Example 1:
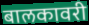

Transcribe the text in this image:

बालकावरी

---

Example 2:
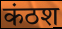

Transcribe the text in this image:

कंठश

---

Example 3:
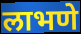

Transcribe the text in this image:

लाभणे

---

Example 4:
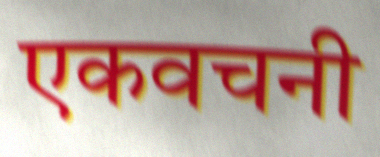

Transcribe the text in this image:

एकवचनी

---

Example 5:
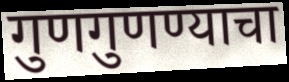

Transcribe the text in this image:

गुणगुणण्याचा